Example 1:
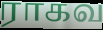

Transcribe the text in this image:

ராகவ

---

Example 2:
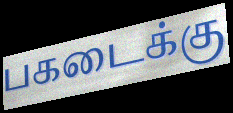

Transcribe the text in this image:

பகடைக்கு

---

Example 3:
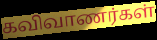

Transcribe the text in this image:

கவிவாணர்கள்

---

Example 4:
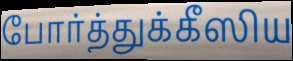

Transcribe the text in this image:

போர்த்துக்கீஸிய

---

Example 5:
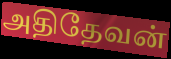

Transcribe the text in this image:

அதிதேவன்